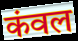
कंवल